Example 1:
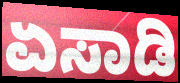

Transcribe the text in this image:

ಏಸಾಡಿ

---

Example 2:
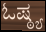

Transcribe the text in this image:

ಓಷ್ಠ್ಯ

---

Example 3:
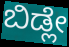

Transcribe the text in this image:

ಬಿಡ್ಲೇ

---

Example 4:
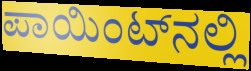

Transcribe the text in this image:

ಪಾಯಿಂಟ್‌ನಲ್ಲಿ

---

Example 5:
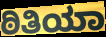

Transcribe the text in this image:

ಠಿತಿಯಾ